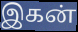
இகன்